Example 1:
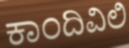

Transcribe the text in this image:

ಕಾಂದಿವಿಲಿ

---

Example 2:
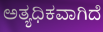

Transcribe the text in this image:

ಅತ್ಯಧಿಕವಾಗಿದೆ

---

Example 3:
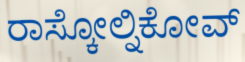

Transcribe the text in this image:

ರಾಸ್ಕೋಲ್ನಿಕೋವ್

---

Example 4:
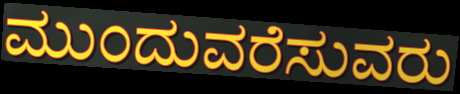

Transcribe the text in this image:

ಮುಂದುವರೆಸುವರು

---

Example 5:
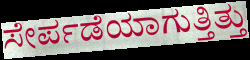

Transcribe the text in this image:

ಸೇರ್ಪಡೆಯಾಗುತ್ತಿತ್ತು